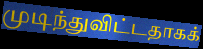
முடிந்துவிட்டதாகக்